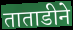
ताताडीने